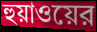
হুয়াওয়ের